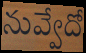
నువ్వేదో